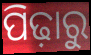
ପିଢ଼ାରୁ